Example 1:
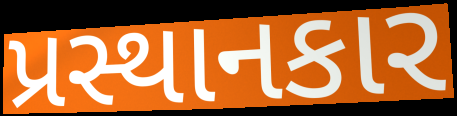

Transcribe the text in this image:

પ્રસ્થાનકાર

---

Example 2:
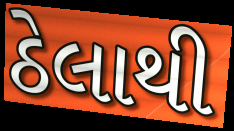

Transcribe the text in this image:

ઠેલાથી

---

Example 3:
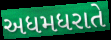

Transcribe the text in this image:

અધમધરાતે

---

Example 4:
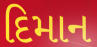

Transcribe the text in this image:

દિમાન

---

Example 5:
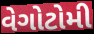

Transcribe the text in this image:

વેગોટોમી